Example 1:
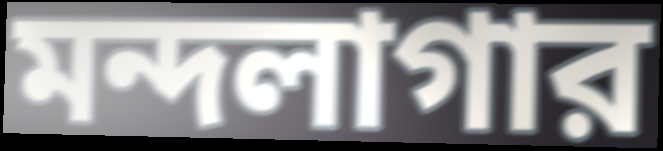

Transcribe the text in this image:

মন্দলাগার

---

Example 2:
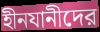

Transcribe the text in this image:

হীনযানীদের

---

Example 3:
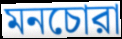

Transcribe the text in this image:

মনচোরা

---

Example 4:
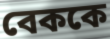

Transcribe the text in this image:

বেককে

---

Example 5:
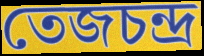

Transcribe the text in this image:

তেজচন্দ্র